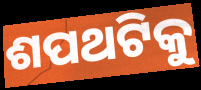
ଶପଥଟିକୁ